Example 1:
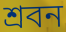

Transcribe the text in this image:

শ্ৰবন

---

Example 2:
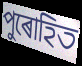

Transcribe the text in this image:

পুৰোহিত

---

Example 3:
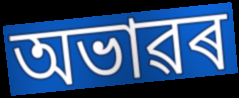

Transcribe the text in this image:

অভাৱৰ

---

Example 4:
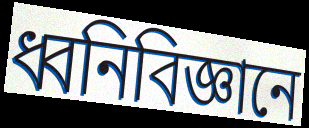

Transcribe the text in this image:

ধ্বনিবিজ্ঞানে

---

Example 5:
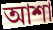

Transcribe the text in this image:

আশা